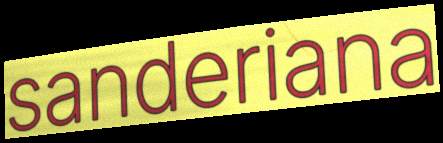
sanderiana